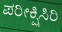
ಪರೀಕ್ಷಿಸಿರಿ